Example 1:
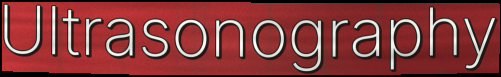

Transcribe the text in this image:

Ultrasonography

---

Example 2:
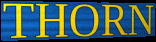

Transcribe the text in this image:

THORN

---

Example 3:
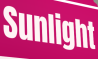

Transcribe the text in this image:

Sunlight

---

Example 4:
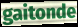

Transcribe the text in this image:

gaitonde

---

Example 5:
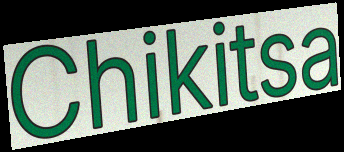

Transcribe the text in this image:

Chikitsa